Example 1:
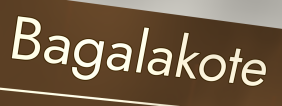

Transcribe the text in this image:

Bagalakote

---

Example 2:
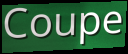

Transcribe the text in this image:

Coupe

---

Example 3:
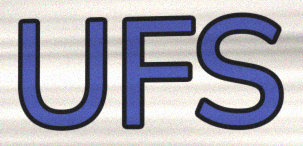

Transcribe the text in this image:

UFS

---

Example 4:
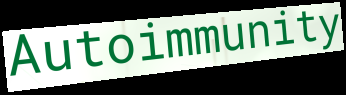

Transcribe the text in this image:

Autoimmunity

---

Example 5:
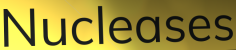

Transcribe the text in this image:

Nucleases